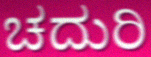
ಚದುರಿ